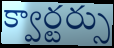
క్వార్టర్సు